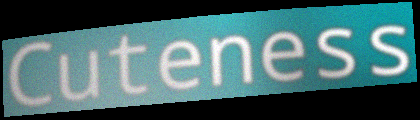
Cuteness